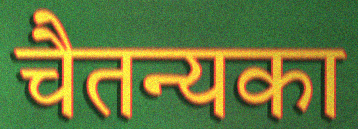
चैतन्यका